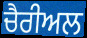
ਚੈਰੀਅਲ